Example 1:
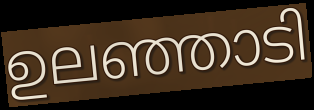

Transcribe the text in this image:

ഉലഞ്ഞാടി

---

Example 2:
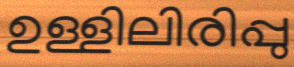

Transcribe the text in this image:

ഉള്ളിലിരിപ്പു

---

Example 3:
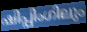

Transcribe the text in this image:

ഷിപ്പിംഗിലും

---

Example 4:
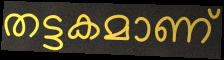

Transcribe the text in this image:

തട്ടകമാണ്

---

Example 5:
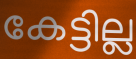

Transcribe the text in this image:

കേട്ടില്ല